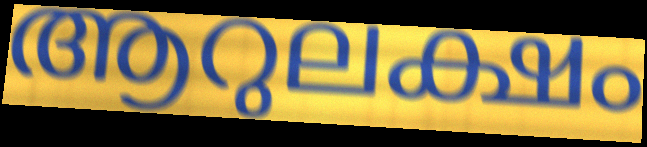
ആറുലക്ഷം